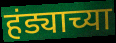
हंड्याच्या